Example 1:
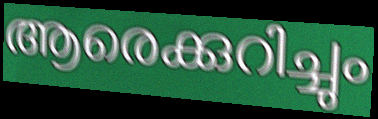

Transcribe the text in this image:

ആരെക്കുറിച്ചും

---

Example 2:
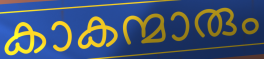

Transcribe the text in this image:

കാകന്മാരും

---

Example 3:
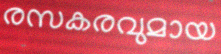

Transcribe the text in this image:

രസകരവുമായ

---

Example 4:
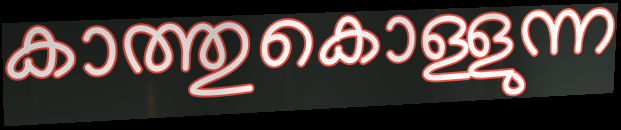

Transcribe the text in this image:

കാത്തുകൊള്ളുന്ന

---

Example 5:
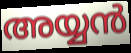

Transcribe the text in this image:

അയ്യൻ